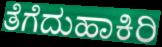
ತೆಗೆದುಹಾಕಿರಿ